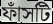
ফাঁসটি